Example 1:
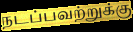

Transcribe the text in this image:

நடப்பவற்றுக்கு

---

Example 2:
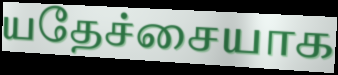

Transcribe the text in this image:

யதேச்சையாக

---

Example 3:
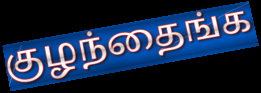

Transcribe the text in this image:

குழந்தைங்க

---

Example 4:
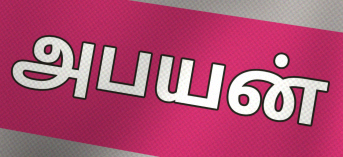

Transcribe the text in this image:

அபயன்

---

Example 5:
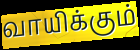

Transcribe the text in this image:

வாயிக்கும்